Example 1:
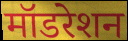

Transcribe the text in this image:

मॉडरेशन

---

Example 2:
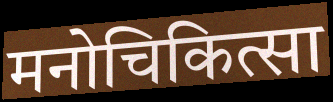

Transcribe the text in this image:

मनोचिकित्सा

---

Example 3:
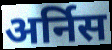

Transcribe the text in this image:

अर्निस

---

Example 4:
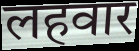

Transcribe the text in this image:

लहवार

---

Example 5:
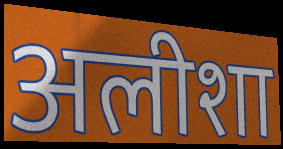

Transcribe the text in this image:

अलीशा